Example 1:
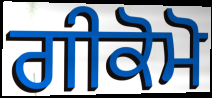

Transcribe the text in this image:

ਗੀਕੋਮੋ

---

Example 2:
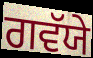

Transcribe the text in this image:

ਗਵੱਯੇ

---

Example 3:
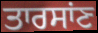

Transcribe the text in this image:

ਤਾਰਸਾਂਣ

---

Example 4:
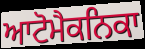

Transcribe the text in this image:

ਆਟੋਮੈਕਨਿਕਾ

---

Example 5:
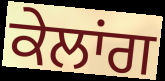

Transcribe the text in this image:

ਕੇਲਾਂਗ